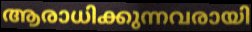
ആരാധിക്കുന്നവരായി